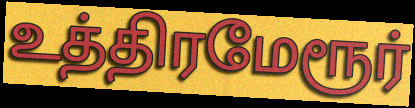
உத்திரமேரூர்